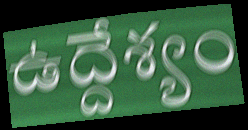
ఉద్దేశ్యం